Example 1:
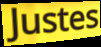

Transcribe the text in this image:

Justes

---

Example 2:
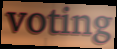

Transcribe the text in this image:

voting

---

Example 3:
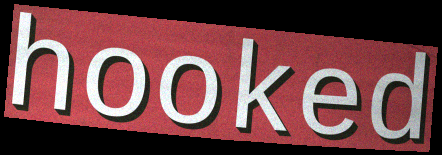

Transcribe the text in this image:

hooked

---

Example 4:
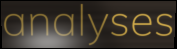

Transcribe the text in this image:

analyses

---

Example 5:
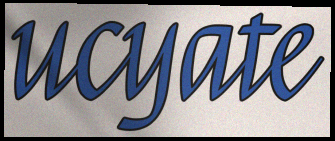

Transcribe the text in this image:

ucyate